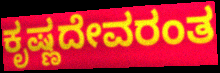
ಕೃಷ್ಣದೇವರಂತ